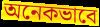
অনেকভাবে